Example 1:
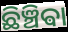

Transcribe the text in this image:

ଛିଞ୍ଚିଵା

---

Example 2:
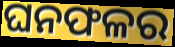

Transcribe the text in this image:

ଘନଫଳର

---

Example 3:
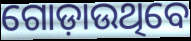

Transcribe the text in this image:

ଗୋଡ଼ାଉଥିବେ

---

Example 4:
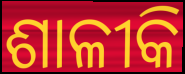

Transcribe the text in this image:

ଶାଳୀକି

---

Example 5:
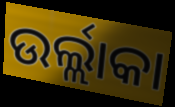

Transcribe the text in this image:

ଉର୍ଲ୍ଲାକା